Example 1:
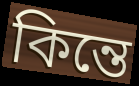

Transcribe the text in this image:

কিন্তে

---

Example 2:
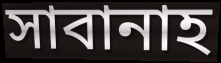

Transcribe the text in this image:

সাবানাহ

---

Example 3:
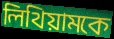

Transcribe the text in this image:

লিথিয়ামকে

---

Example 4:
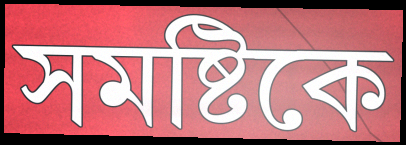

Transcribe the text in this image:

সমষ্টিকে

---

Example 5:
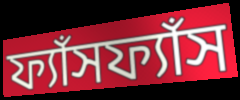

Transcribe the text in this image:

ফ্যাঁসফ্যাঁস